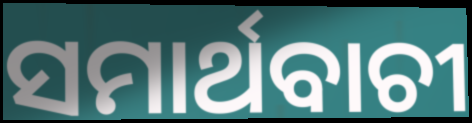
ସମାର୍ଥବାଚୀ